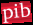
pib